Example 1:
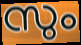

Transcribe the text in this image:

സും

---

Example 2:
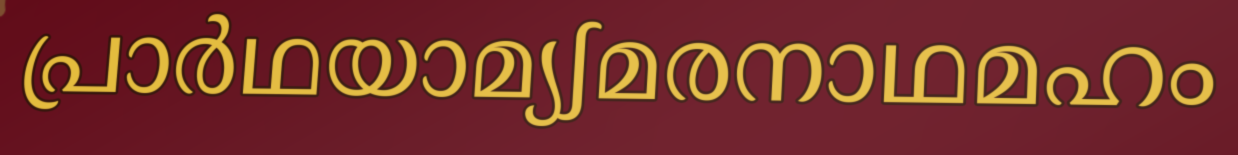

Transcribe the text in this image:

പ്രാർഥയാമ്യഽമരനാഥമഹം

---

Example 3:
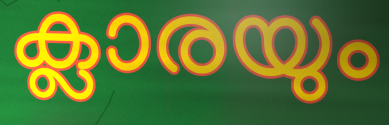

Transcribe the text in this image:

ക്ലാരയും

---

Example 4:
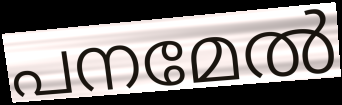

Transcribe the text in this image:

പനമേൽ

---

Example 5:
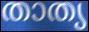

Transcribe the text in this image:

താത്യ